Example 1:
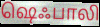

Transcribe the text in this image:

ஷெஃபாலி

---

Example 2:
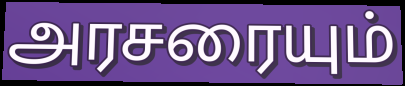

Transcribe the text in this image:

அரசரையும்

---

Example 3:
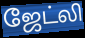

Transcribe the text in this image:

ஜேட்லி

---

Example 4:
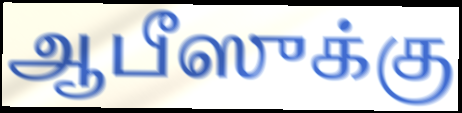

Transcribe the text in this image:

ஆபீஸுக்கு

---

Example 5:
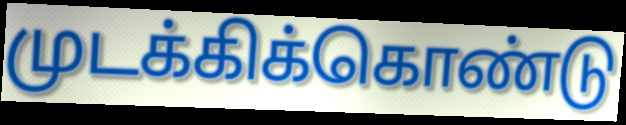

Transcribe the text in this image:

முடக்கிக்கொண்டு